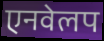
एनवेलप